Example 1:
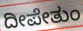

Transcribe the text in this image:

ದೀಪೇತುಂ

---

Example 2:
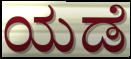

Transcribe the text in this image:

ಯಡೆ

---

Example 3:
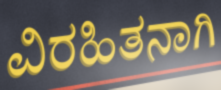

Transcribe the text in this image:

ವಿರಹಿತನಾಗಿ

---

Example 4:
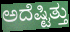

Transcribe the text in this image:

ಅದೆಷ್ಟಿತ್ತು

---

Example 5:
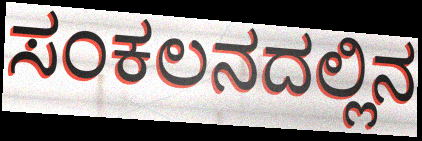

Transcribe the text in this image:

ಸಂಕಲನದಲ್ಲಿನ